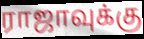
ராஜாவுக்கு